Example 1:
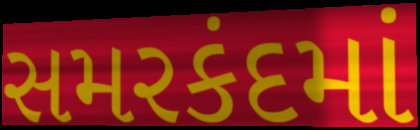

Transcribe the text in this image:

સમરકંદમાં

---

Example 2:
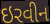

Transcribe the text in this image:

ઇરવીન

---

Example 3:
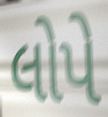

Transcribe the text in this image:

લોપે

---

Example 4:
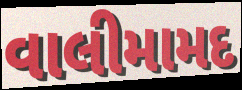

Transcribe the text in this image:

વાલીમામદ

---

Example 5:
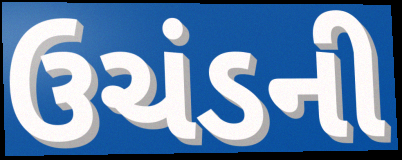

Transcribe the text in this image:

ઉચંડની